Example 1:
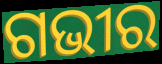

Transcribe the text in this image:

ଗଭୀର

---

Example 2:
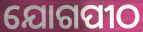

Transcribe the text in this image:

ଯୋଗପୀଠ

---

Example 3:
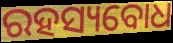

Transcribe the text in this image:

ରହସ୍ୟବୋଧ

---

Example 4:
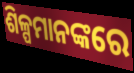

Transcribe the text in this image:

ଶିଳ୍ପମାନଙ୍କରେ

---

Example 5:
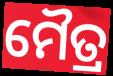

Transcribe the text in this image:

ମୈତ୍ର